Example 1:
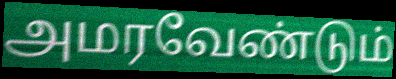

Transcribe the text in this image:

அமரவேண்டும்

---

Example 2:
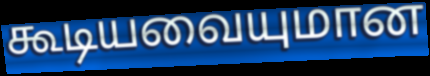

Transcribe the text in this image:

கூடியவையுமான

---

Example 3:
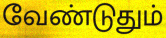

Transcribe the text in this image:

வேண்டுதும்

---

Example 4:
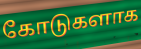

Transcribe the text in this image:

கோடுகளாக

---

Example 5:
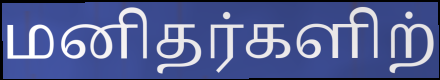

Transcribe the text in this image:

மனிதர்களிற்